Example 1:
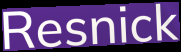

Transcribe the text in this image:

Resnick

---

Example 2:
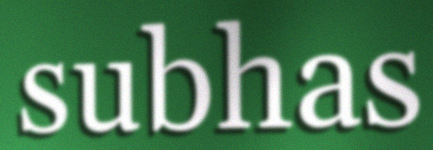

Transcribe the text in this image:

subhas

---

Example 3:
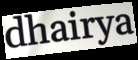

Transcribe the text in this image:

dhairya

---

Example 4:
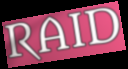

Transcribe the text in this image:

RAID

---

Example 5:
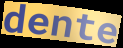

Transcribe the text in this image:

dente